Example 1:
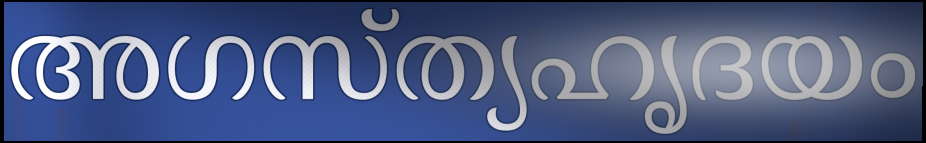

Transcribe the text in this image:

അഗസ്ത്യഹൃദയം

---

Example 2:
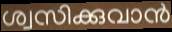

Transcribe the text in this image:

ശ്വസിക്കുവാൻ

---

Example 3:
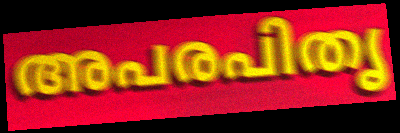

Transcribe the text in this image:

അപരപിതൃ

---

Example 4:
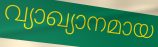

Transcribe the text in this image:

വ്യാഖ്യാനമായ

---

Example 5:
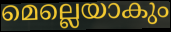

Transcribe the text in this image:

മെല്ലെയാകും